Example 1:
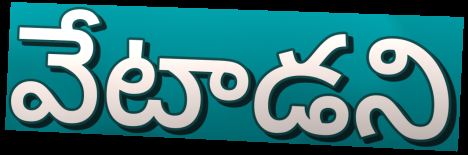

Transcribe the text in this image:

వేటాడని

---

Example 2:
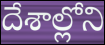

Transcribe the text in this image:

దేశాల్లోని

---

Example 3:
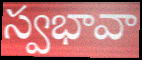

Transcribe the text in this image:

స్వభావా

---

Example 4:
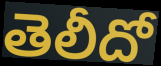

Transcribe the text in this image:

తెలీదో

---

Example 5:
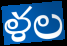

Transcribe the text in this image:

ళల